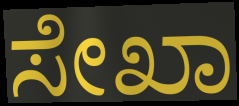
ಸೇಖಾ